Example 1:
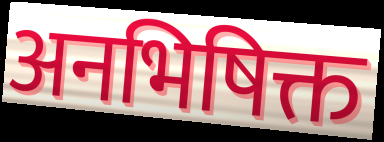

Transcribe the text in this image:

अनभिषिक्त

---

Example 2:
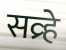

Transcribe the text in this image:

सव्र्हे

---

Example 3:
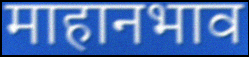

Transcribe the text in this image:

माहानभाव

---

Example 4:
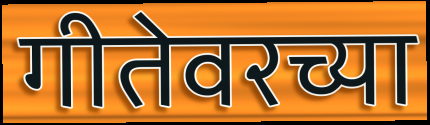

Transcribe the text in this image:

गीतेवरच्या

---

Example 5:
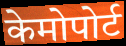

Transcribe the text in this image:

केमोपोर्ट